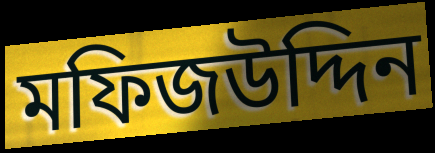
মফিজউদ্দিন